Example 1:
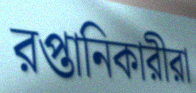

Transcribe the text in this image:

রপ্তানিকারীরা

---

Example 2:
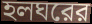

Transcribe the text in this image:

হলঘরের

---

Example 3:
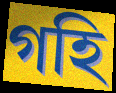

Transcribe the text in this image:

গহি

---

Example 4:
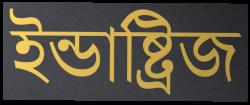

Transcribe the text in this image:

ইন্ডাষ্ট্রিজ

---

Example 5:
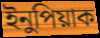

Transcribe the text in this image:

ইনুপিয়াক